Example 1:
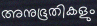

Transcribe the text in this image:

അനുഭൂതികളും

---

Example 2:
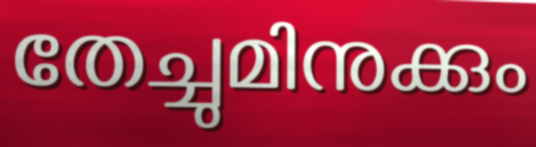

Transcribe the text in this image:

തേച്ചുമിനുക്കും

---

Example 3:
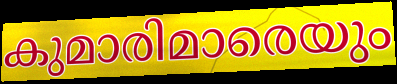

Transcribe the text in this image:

കുമാരിമാരെയും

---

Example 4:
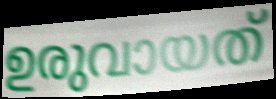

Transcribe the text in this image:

ഉരുവായത്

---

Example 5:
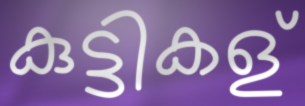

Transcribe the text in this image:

കുട്ടികള്